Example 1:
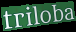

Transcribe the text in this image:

triloba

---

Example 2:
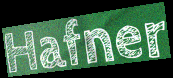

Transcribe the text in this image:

Hafner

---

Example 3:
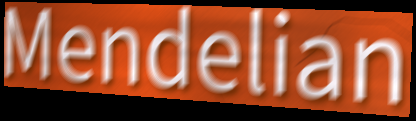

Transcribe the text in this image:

Mendelian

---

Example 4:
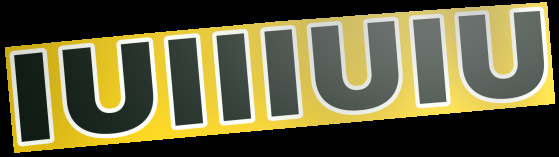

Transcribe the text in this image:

IUIIIUIU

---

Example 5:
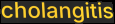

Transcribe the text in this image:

cholangitis